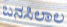
ಬನಸಿಲಾಲ